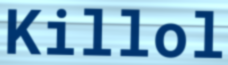
Killol